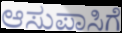
ಆಸುಪಾಸಿಗೆ